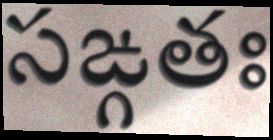
సఙ్గతః